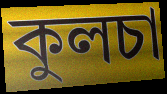
কুলচা